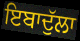
ਇਬਾਦੁੱਲਾ